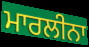
ਮਾਰਲੀਨਾ